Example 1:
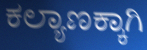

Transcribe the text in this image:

ಕಲ್ಯಾಣಕ್ಕಾಗಿ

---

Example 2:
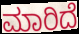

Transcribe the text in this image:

ಮಾರಿದೆ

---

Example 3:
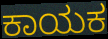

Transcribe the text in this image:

ಕಾಯಕ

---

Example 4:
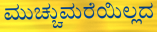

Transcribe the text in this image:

ಮುಚ್ಚುಮರೆಯಿಲ್ಲದ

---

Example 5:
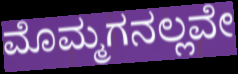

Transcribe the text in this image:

ಮೊಮ್ಮಗನಲ್ಲವೇ